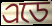
এডে